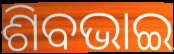
ଶିବଭାଇ